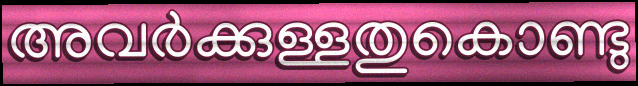
അവർക്കുള്ളതുകൊണ്ടു